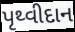
પૃથ્વીદાન